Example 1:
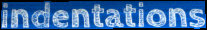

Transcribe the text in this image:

indentations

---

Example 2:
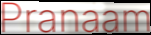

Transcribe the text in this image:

Pranaam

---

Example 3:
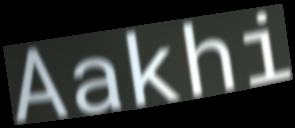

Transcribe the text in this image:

Aakhi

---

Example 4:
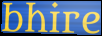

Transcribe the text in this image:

bhire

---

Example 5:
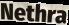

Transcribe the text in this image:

Nethra